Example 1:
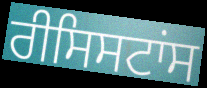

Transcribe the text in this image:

ਰੀਸਿਸਟਾਂਸ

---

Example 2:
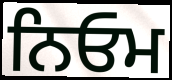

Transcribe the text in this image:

ਨਿਓਮ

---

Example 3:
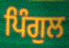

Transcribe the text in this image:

ਪਿੰਗੁਲ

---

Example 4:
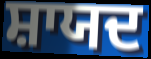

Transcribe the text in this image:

ਸ਼ਾਯਦ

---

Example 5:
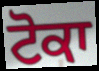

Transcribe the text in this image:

ਟੋਕਾ